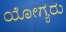
ಯೋಗ್ಯರು